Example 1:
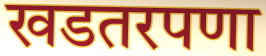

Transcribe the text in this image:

खडतरपणा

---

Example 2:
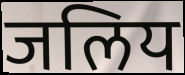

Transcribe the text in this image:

जलिय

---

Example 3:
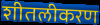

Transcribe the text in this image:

शीतलीकरण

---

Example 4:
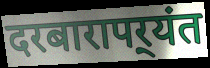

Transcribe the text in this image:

दरबारापर्यंत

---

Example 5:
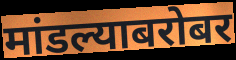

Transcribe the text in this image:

मांडल्याबरोबर